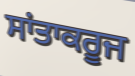
ਸਾਂਤਾਕਰੂਜ